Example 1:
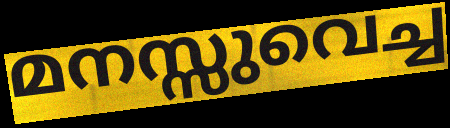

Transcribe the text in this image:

മനസ്സുവെച്ച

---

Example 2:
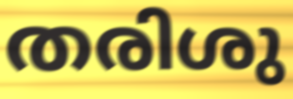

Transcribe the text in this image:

തരിശു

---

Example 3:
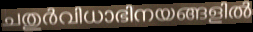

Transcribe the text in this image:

ചതുർവിധാഭിനയങ്ങളിൽ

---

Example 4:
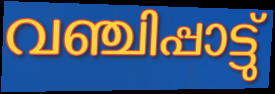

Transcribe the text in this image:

വഞ്ചിപ്പാട്ടു്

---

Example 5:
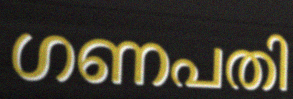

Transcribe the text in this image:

ഗണപതി